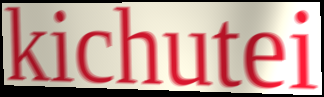
kichutei